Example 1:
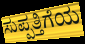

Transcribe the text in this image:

ಸುಪ್ಪತ್ತಿಗೆಯ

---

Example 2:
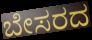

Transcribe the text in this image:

ಬೇಸರದ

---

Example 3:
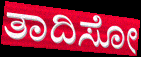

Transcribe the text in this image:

ತಾದಿಸೋ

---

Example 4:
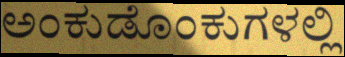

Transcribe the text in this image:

ಅಂಕುಡೊಂಕುಗಳಲ್ಲಿ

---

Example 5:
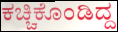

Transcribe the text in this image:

ಕಚ್ಚಿಕೊಂಡಿದ್ದ